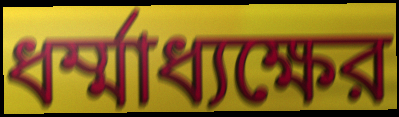
ধর্ম্মাধ্যক্ষের